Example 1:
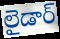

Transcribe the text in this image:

లైడార్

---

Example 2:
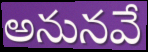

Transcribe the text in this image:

అనునవే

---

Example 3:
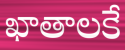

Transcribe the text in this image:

ఖాతాలకే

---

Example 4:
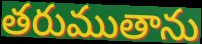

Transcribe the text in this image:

తరుముతాను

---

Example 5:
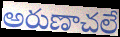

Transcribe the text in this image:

అరుణాచలే